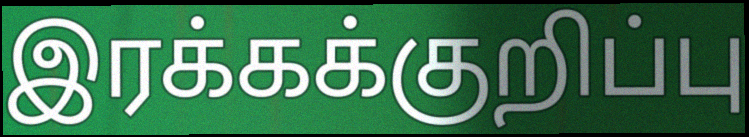
இரக்கக்குறிப்பு